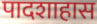
पादशाहास